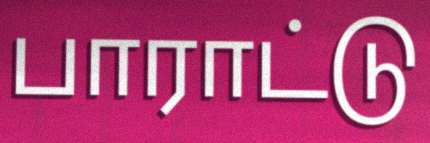
பாராட்டு